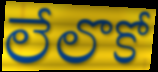
లేలొకో